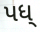
પધ્